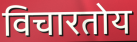
विचारतोय